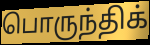
பொருந்திக்